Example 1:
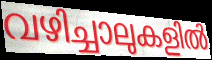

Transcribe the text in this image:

വഴിച്ചാലുകളിൽ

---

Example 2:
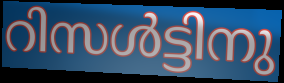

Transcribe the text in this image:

റിസൾട്ടിനു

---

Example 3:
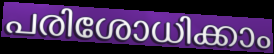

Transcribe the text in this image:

പരിശോധിക്കാം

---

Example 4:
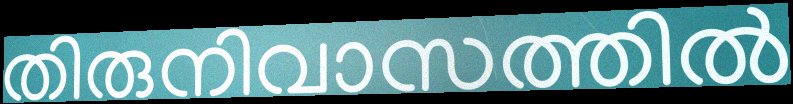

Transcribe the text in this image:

തിരുനിവാസത്തിൽ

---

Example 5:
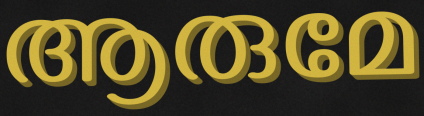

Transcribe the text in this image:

ആരുമേ